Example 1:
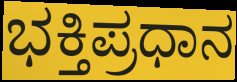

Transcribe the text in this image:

ಭಕ್ತಿಪ್ರಧಾನ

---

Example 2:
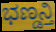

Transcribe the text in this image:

ಭಣ್ಡನ್ತಿ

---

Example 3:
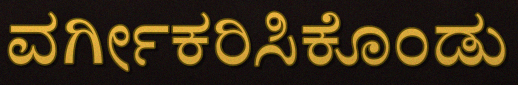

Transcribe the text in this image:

ವರ್ಗೀಕರಿಸಿಕೊಂಡು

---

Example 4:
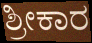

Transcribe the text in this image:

ಶ್ರೀಕಾರ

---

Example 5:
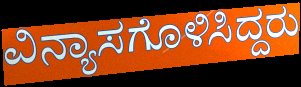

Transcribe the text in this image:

ವಿನ್ಯಾಸಗೊಳಿಸಿದ್ದರು